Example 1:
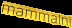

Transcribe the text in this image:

mammalni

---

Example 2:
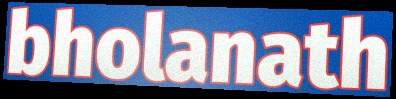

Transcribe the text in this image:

bholanath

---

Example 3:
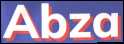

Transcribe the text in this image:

Abza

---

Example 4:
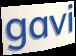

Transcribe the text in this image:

gavi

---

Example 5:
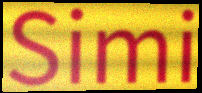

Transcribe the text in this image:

Simi